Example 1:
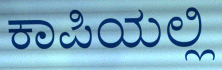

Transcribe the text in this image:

ಕಾಪಿಯಲ್ಲಿ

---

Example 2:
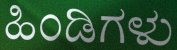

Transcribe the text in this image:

ಹಿಂಡಿಗಳು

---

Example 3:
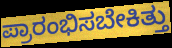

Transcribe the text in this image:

ಪ್ರಾರಂಭಿಸಬೇಕಿತ್ತು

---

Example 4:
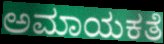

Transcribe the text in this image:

ಅಮಾಯಕತೆ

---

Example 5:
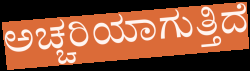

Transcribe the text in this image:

ಅಚ್ಚರಿಯಾಗುತ್ತಿದೆ